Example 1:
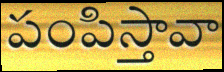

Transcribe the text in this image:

పంపిస్తావా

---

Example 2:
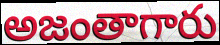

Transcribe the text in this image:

అజంతాగారు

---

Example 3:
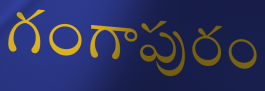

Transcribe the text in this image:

గంగాపురం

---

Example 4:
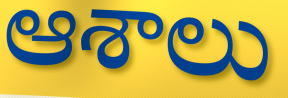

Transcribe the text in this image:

ఆశాలు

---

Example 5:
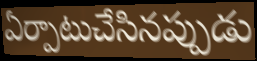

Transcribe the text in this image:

ఏర్పాటుచేసినప్పుడు